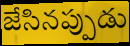
జేసినప్పుడు